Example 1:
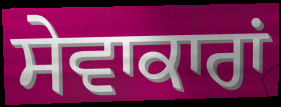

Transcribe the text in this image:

ਸੇਵਾਕਾਰਾਂ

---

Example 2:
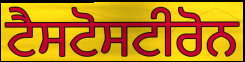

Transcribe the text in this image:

ਟੈਸਟੋਸਟੀਰੋਨ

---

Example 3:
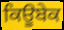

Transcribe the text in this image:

ਕਿਊਬੇਕ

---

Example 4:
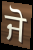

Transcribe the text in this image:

ਜੋ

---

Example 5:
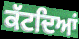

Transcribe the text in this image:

ਕੱਟਦਿਆਂ